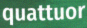
quattuor